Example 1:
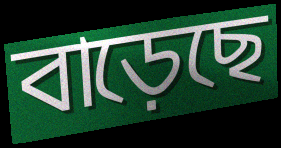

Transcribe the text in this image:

বাড়েছে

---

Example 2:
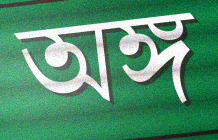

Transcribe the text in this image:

অঙ্গ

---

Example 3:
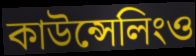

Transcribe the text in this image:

কাউন্সেলিংও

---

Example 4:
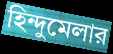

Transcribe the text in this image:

হিন্দুমেলার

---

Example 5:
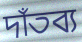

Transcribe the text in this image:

দাঁতব্য